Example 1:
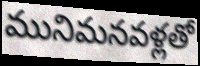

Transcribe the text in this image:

మునిమనవళ్లతో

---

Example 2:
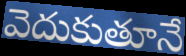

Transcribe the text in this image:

వెదుకుతూనే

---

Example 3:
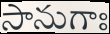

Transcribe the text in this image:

సానుగాః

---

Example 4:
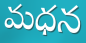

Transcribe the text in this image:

మధన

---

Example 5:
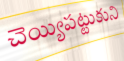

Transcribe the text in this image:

చెయ్యిపట్టుకుని